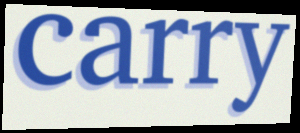
carry